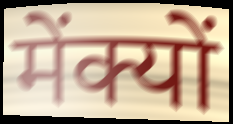
मेंक्यों